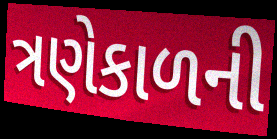
ત્રણેકાળની